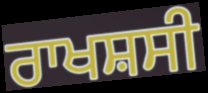
ਰਾਖਸ਼ਸੀ